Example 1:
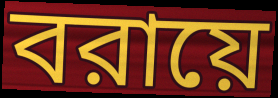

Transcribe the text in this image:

বরায়ে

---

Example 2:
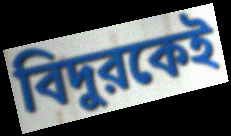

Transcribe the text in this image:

বিদুরকেই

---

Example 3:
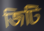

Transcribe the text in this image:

জিটি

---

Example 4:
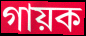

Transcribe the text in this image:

গায়ক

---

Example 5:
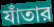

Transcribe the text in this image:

যাঁতার